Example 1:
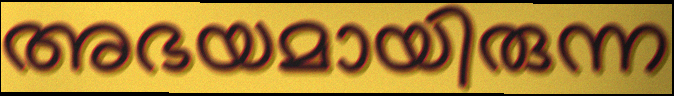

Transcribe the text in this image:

അഭയമായിരുന്ന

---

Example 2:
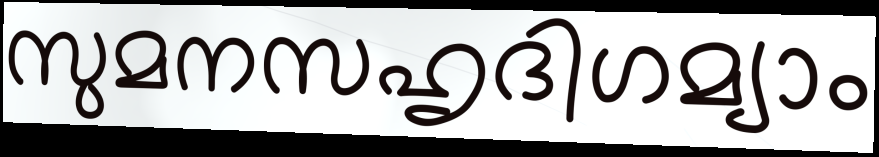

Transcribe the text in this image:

സുമനസഹൃദിഗമ്യാം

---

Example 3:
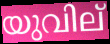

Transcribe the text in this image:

യുവില്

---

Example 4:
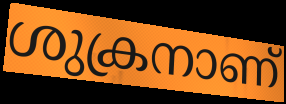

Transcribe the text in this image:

ശുക്രനാണ്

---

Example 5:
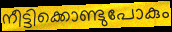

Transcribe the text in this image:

നീട്ടിക്കൊണ്ടുപോകും